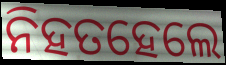
ନିହତହେଲେ